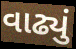
વાઢ્યું